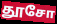
தூசோ